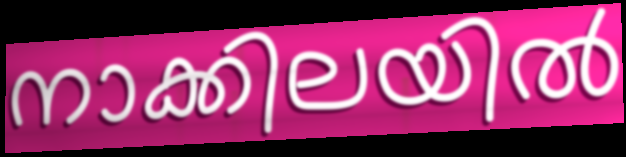
നാക്കിലയിൽ